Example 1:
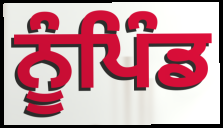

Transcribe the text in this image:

ਨੂੰਪਿੰਡ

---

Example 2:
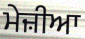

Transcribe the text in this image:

ਮੇਜ਼ੀਆ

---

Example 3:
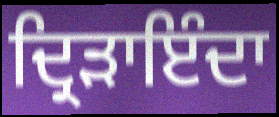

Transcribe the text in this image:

ਦ੍ਰਿੜਾਇੰਦਾ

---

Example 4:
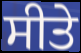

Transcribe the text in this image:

ਸੀਤੇ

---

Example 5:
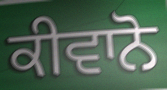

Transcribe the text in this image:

ਕੀਵਾਨੋ